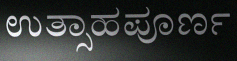
ಉತ್ಸಾಹಪೂರ್ಣ